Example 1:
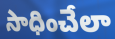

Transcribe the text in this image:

సాధించేలా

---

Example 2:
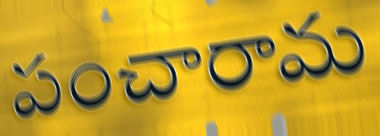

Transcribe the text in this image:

పంచారామ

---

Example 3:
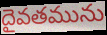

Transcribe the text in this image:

దైవతమును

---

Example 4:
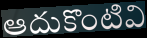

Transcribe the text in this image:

ఆదుకొంటివి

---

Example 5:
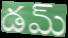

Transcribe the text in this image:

డమ్